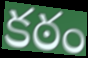
కఠం